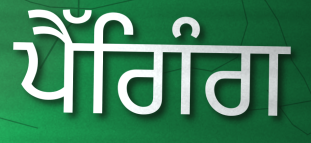
ਪੈੱਗਿੰਗ